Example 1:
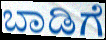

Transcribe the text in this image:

ಬಾಡಿಗೆ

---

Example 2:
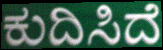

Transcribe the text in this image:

ಕುದಿಸಿದೆ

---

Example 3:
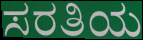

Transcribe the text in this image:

ಸರತಿಯ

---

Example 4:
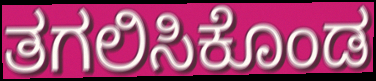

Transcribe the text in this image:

ತಗಲಿಸಿಕೊಂಡ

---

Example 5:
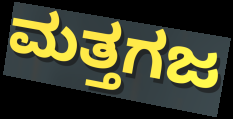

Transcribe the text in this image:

ಮತ್ತಗಜ